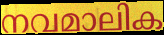
നവമാലിക